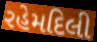
રહેમદિલી